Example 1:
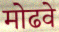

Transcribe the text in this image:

मोढवे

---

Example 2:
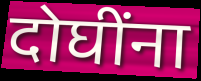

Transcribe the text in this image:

दोघींना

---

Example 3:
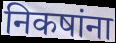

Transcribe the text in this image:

निकषांना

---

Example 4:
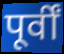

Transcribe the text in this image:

पूर्वीं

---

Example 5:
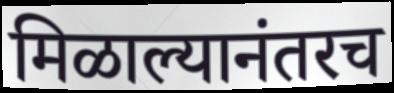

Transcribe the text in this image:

मिळाल्यानंतरच